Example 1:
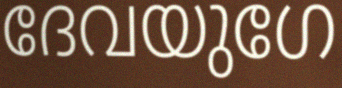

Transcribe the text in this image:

ദേവയുഗേ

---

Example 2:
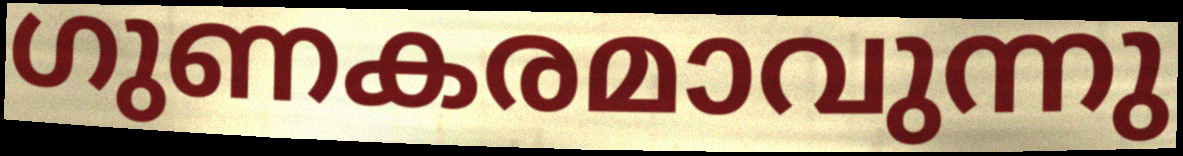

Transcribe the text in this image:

ഗുണകരമാവുന്നു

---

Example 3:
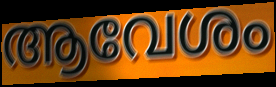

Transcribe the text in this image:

ആവേശം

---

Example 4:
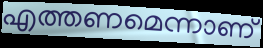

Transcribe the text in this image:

എത്തണമെന്നാണ്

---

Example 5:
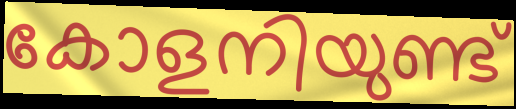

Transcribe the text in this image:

കോളനിയുണ്ട്